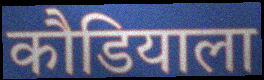
कौडियाला